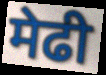
मेढी